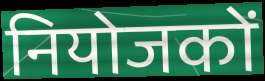
नियोजकों